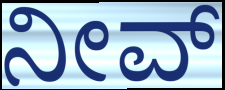
ನೀವ್